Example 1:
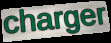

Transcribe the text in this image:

charger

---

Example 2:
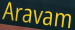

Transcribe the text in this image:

Aravam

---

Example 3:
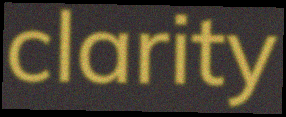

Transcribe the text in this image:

clarity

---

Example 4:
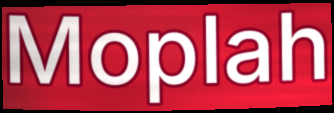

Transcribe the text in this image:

Moplah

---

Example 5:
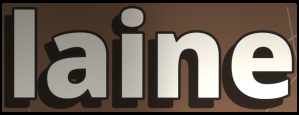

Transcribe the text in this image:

laine